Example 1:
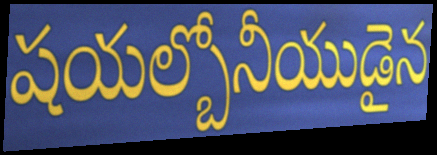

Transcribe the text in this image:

షయల్బోనీయుడైన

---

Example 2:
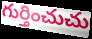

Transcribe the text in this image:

గుర్తించుచు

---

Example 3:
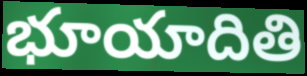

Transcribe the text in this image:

భూయాదితి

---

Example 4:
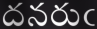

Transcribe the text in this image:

దనరుఁ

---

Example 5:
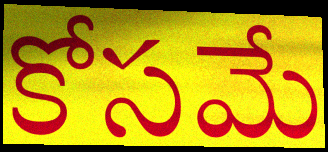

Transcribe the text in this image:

కోసమే